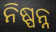
ନିଷ୍ପନ୍ନ